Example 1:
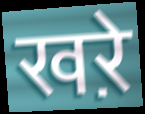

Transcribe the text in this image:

खऱे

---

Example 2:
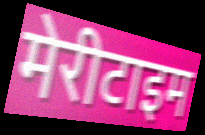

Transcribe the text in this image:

मेरीटाइम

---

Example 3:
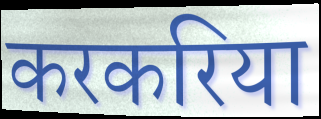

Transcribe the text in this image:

करकरिया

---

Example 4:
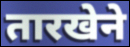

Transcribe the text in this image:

तारखेने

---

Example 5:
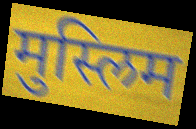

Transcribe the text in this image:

मुस्लिम